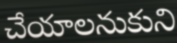
చేయాలనుకుని